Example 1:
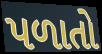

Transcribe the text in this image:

પળાતો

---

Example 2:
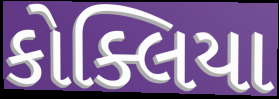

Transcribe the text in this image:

કોક્લિયા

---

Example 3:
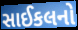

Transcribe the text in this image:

સાઈકલનો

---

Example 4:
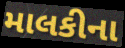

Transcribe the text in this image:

માલકીના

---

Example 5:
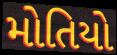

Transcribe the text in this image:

મોતિયો